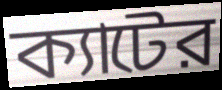
ক্যাটের